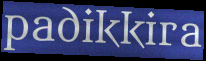
padikkira